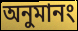
অনুমানং